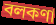
বলকণা